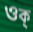
ওক্